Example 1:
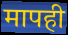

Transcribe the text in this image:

मापही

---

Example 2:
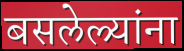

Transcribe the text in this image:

बसलेल्यांना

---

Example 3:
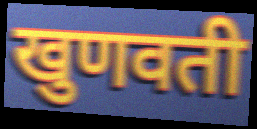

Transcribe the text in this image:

खुणवती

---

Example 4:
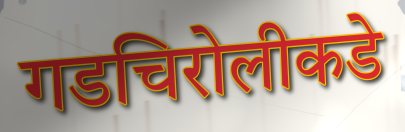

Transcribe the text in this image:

गडचिरोलीकडे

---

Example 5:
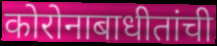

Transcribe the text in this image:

कोरोनाबाधीतांची